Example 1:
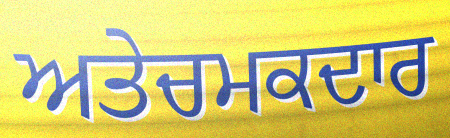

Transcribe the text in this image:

ਅਤੇਚਮਕਦਾਰ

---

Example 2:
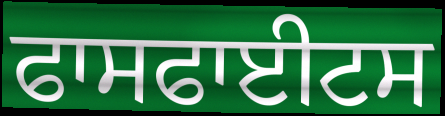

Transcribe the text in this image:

ਫਾਸਫਾਈਟਸ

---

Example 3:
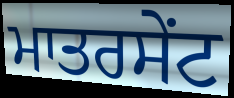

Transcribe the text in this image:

ਮਾਤਰਸੇਂਟ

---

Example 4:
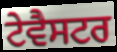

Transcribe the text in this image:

ਟੇਵੈਸਟਰ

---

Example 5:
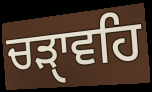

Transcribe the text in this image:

ਚੜੑਾਵਹਿ